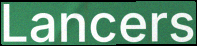
Lancers